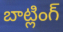
బాట్లింగ్